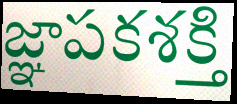
జ్ఞాపకశక్తి